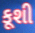
કૂશી